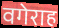
वगेराह